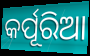
କର୍ପୂରିଆ